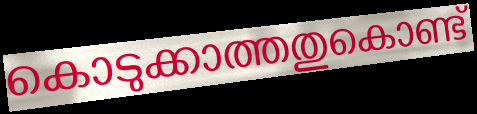
കൊടുക്കാത്തതുകൊണ്ട്